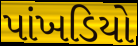
પાંખડિયો